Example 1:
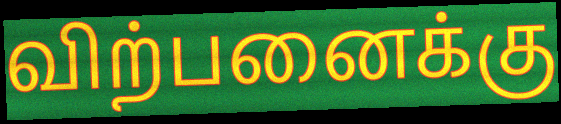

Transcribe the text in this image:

விற்பனைக்கு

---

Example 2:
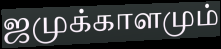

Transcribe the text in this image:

ஜமுக்காளமும்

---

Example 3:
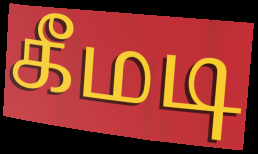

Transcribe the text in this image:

கீமடி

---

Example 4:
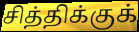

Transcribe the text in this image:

சித்திக்குக்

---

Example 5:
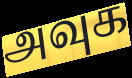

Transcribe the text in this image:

அவுக